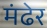
मंढेर